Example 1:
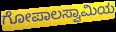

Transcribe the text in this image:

ಗೋಪಾಲಸ್ವಾಮಿಯ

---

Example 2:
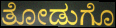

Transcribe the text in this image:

ತೋಡುಗೊ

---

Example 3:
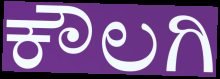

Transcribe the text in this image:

ಕೌಲಗಿ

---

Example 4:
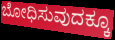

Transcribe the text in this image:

ಬೋಧಿಸುವುದಕ್ಕೂ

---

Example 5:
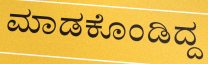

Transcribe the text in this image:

ಮಾಡಕೊಂಡಿದ್ದ